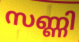
സണ്ണി